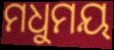
ମଧୁମୟ